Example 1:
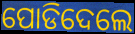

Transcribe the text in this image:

ପୋଡିଦେଲେ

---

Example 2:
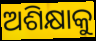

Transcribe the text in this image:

ଅଶିକ୍ଷାକୁ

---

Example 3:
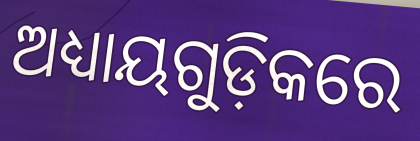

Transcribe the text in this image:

ଅଧ୍ୟାୟଗୁଡ଼ିକରେ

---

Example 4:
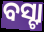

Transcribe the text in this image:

ବସ୍ଟା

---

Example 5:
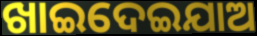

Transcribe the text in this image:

ଖାଇଦେଇଯାଅ